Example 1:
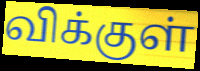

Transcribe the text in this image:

விக்குள்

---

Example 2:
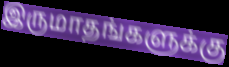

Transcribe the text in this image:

இருமாதங்களுக்கு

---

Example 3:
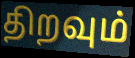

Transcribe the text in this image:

திறவும்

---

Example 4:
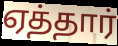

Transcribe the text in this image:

ஏத்தார்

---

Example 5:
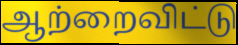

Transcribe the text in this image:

ஆற்றைவிட்டு